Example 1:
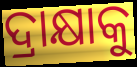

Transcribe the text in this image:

ଦ୍ରାକ୍ଷାକୁ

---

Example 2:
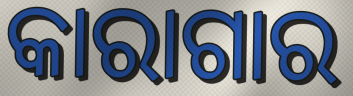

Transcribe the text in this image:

କାରାଗାର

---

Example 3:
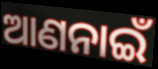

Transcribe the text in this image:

ଆଣନାଇଁ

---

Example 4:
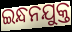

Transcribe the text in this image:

ଇନ୍ଧନଯୁକ୍ତ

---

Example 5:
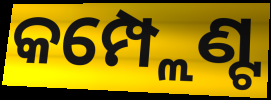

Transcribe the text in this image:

କମ୍ପ୍ଲେଣ୍ଟ